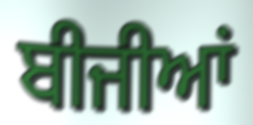
ਬੀਜੀਆਂ